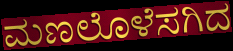
ಮಣಲೊಳೆಸಗಿದ